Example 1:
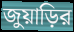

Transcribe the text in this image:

জুয়াড়ির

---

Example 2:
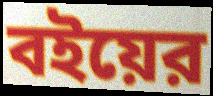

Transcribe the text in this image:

বইয়ের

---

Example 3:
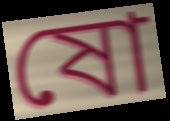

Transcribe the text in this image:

ষো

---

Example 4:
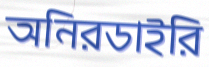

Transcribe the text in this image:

অনিরডাইরি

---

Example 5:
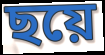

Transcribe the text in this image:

ছয়ে